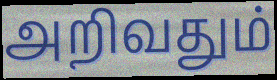
அறிவதும்